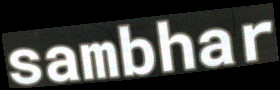
sambhar